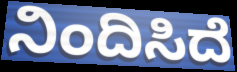
ನಿಂದಿಸಿದೆ